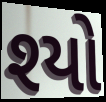
શ્યો